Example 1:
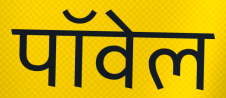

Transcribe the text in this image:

पॉवेल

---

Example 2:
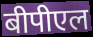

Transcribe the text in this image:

बीपीएल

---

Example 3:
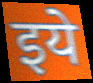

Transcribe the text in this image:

इये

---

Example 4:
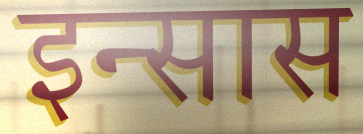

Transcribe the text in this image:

इन्सास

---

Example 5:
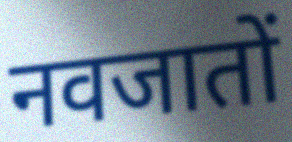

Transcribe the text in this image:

नवजातों